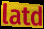
latd